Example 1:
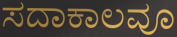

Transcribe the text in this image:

ಸದಾಕಾಲವೂ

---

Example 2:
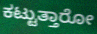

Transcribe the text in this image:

ಕಟ್ಟುತ್ತಾರೋ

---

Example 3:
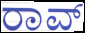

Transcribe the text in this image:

ರಾವ್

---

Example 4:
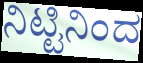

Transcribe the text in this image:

ನಿಟ್ಟಿನಿಂದ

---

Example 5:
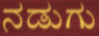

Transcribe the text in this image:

ನಡುಗು